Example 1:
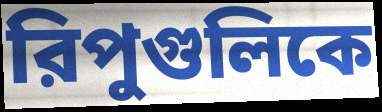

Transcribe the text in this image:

রিপুগুলিকে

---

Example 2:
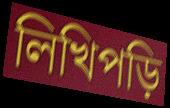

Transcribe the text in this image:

লিখিপড়ি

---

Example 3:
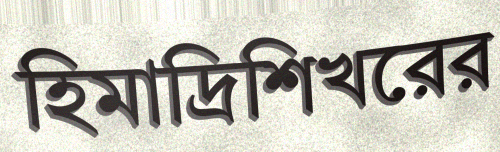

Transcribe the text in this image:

হিমাদ্রিশিখরের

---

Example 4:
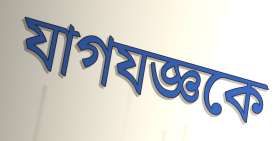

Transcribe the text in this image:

যাগযজ্ঞকে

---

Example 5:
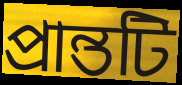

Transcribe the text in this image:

প্রান্তটি